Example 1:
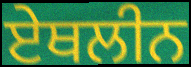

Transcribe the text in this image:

ਏਥਲੀਨ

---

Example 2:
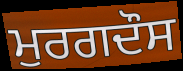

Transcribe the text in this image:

ਮੁਰਗਦੌਸ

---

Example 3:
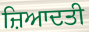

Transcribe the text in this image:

ਜ਼ਿਆਦਤੀ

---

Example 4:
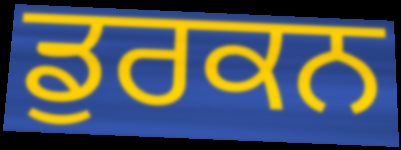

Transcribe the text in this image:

ਡੁਰਕਨ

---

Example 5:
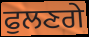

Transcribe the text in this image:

ਫੁਲਣਗੇ